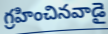
గ్రహించినవాడై